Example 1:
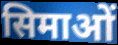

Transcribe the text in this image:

सिमाओं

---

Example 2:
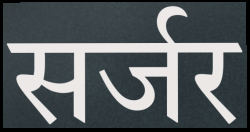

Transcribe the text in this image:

सर्जर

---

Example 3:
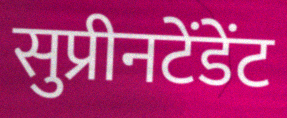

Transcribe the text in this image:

सुप्रीनटेंडेंट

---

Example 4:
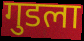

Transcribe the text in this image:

गुडला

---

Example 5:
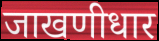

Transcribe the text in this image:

जाखणीधार